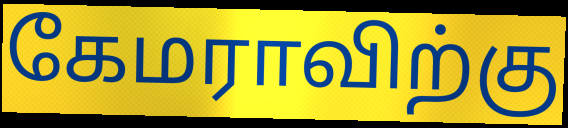
கேமராவிற்கு